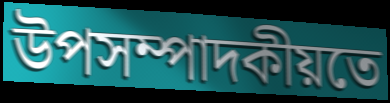
উপসম্পাদকীয়তে